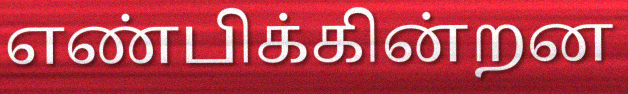
எண்பிக்கின்றன